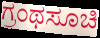
ಗ್ರಂಥಸೂಚಿ